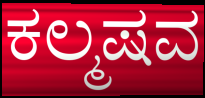
ಕಲ್ಮಷವ